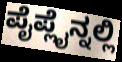
ಪೈಪ್ಲೈನ್ನಲ್ಲಿ